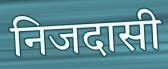
निजदासी